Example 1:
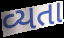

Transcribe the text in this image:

વ્યતા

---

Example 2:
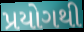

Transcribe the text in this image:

પ્રયોગથી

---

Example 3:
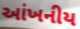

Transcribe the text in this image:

આંખનીય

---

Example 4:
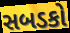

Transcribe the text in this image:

સબડકો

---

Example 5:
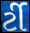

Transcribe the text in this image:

ર્ટી